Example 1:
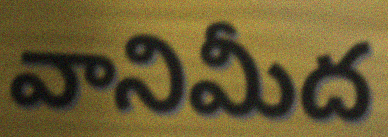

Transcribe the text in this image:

వానిమీద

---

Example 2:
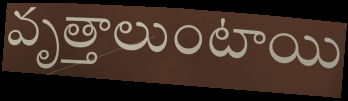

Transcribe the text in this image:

వృత్తాలుంటాయి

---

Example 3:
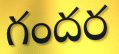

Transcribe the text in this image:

గందర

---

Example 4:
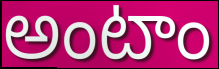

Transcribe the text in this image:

అంటాం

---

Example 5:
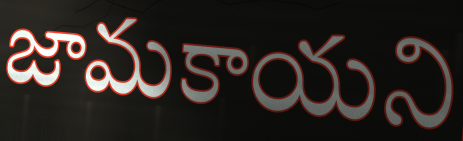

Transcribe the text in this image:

జామకాయని